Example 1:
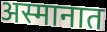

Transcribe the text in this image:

अस्मानात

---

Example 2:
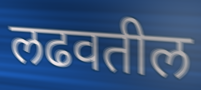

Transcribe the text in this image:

लढवतील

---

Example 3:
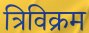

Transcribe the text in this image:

त्रिविक्रम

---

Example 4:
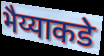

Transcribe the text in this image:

भैय्याकडे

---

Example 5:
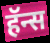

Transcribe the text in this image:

हॅन्स